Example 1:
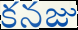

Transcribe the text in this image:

కనజు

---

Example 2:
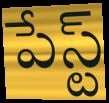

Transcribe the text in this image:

పేస్ట్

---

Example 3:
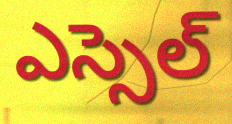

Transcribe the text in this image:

ఎస్సెల్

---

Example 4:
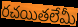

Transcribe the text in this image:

రచయితలేమీ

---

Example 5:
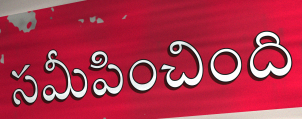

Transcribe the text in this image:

సమీపించింది